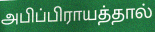
அபிப்பிராயத்தால்